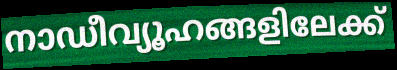
നാഡീവ്യൂഹങ്ങളിലേക്ക്